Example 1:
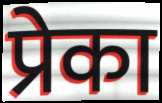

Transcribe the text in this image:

प्रेका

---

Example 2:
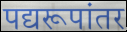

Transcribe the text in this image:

पद्यरूपांतर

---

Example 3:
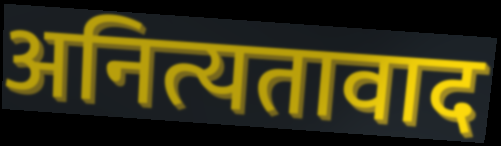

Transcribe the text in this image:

अनित्यतावाद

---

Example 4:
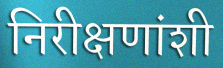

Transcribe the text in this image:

निरीक्षणांशी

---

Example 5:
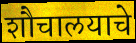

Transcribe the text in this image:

शौचालयाचे